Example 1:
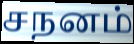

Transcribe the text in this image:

சநனம்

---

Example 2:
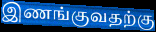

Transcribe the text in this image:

இணங்குவதற்கு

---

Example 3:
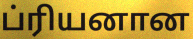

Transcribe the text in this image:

ப்ரியனான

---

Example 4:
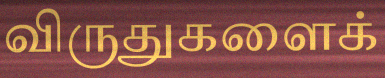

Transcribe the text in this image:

விருதுகளைக்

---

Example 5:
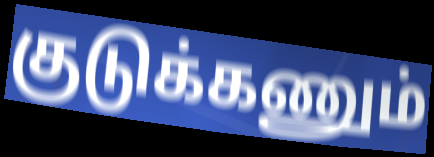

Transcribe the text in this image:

குடுக்கணும்